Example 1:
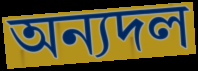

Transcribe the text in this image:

অন্যদল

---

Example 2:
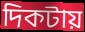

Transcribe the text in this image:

দিকটায়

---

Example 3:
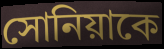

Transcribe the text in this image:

সোনিয়াকে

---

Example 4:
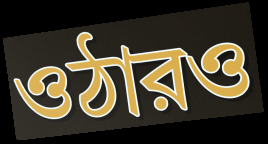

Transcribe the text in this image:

ওঠারও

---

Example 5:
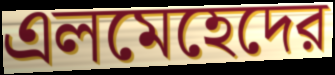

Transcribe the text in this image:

এলমেহেদের